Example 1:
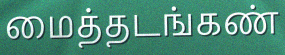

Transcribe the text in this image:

மைத்தடங்கண்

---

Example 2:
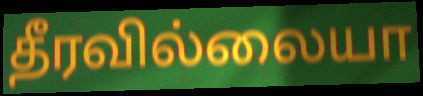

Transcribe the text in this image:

தீரவில்லையா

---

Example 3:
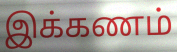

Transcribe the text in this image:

இக்கணம்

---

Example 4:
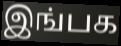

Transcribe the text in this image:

இங்பக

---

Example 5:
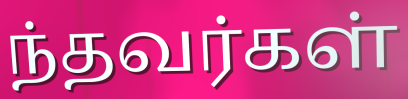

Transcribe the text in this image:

ந்தவர்கள்